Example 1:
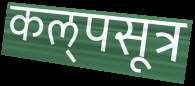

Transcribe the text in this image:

कल्पसूत्र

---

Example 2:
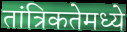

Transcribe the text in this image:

तांत्रिकतेमध्ये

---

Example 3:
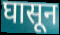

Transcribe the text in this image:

घासून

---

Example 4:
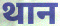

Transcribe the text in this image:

थान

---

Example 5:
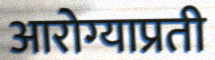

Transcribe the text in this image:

आरोग्याप्रती